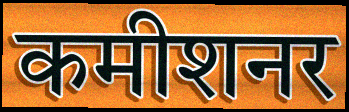
कमीशनर